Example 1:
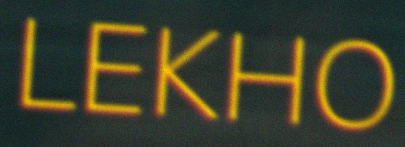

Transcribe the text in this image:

LEKHO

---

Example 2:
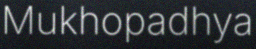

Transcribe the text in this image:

Mukhopadhya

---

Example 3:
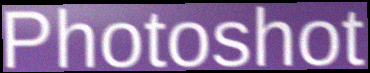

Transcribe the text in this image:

Photoshot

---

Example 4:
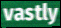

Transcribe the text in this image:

vastly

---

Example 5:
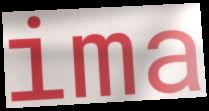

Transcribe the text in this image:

ima